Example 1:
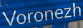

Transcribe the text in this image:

Voronezh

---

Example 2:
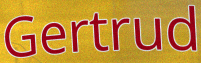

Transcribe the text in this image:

Gertrud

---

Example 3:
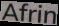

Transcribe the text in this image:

Afrin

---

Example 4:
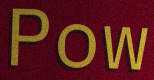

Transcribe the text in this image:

Pow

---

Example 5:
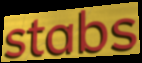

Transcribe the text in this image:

stabs